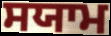
ਸਯਾਮ